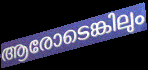
ആരോടെങ്കിലും